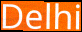
Delhi